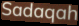
Sadaqah